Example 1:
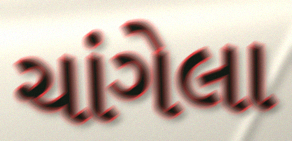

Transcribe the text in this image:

ચાંગેલા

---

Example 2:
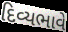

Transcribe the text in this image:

દિવ્યભાવે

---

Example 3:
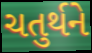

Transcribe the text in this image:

ચતુર્થને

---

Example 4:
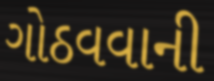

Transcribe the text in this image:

ગોઠવવાની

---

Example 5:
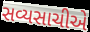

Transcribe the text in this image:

સવ્યસાચીએ